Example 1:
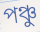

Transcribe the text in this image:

পঞ্চু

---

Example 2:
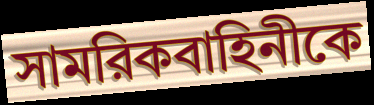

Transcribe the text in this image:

সামরিকবাহিনীকে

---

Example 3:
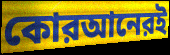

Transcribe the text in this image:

কোরআনেরই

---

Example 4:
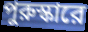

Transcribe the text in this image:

পুরুস্কারে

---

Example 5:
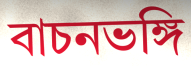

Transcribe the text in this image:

বাচনভঙ্গি